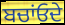
ਬਚਾਂਓਦੇ